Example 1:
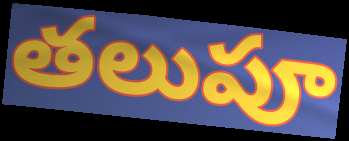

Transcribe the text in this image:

తలుపూ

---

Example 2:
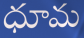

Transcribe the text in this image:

ధూమ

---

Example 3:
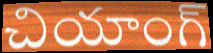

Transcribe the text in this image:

చియాంగ్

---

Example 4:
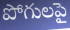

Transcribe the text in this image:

పోగులపై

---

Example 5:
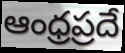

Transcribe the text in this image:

ఆంధ్రప్రదే